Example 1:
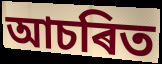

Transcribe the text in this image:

আচৰিত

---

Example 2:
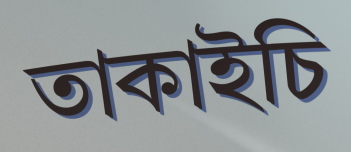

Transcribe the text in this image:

তাকাইচি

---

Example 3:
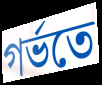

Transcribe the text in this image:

গৰ্ভতে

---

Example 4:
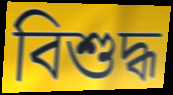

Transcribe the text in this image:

বিশুদ্ধ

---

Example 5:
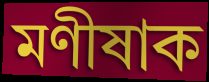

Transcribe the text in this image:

মণীষাক